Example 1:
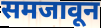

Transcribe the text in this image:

समजावून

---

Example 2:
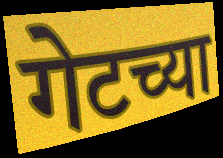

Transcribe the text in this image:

गेटच्या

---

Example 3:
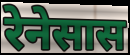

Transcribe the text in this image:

रेनेसास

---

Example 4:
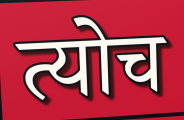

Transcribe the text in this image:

त्योच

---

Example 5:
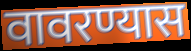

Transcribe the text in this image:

वावरण्यास